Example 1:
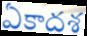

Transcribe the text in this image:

ఏకాదశ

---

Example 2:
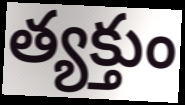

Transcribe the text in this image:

త్యక్తుం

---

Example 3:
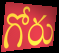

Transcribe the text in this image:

గోరు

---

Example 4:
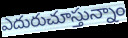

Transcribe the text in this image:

ఎదురుచూస్తున్నాం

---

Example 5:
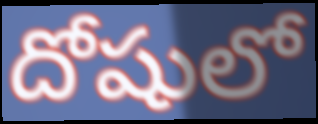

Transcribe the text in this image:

దోషులో